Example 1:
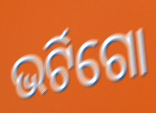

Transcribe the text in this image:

ଭର୍ଟିଗୋ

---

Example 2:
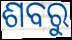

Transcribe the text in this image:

ଶବରୁ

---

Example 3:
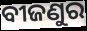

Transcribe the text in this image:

ବୀଜଣୁର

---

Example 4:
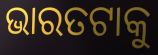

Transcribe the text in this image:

ଭାରତଟାକୁ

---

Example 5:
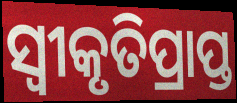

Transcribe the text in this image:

ସ୍ୱୀକୃତିପ୍ରାପ୍ତ